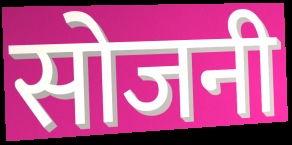
सोजनी